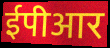
ईपीआर